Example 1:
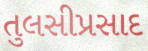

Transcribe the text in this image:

તુલસીપ્રસાદ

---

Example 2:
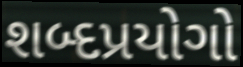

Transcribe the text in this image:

શબ્દપ્રયોગો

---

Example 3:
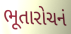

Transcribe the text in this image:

ભૂતારોચનં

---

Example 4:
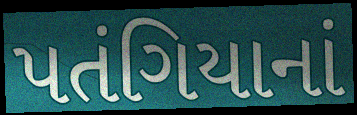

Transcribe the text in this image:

પતંગિયાનાં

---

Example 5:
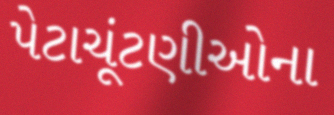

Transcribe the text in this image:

પેટાચૂંટણીઓના